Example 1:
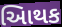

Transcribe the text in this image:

આિથક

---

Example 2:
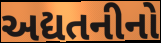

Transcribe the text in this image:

અદ્યતનીનો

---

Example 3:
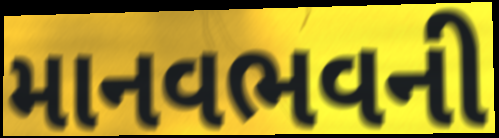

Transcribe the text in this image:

માનવભવની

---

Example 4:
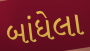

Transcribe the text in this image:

બાંધેલા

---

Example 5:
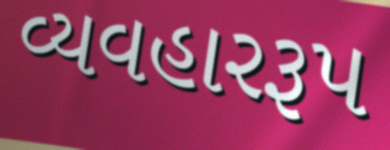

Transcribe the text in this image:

વ્યવહારરૂપ